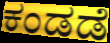
ಕಂಡಡೆ